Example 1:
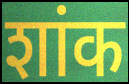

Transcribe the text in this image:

शांक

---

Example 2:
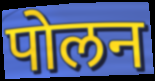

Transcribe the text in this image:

पोलन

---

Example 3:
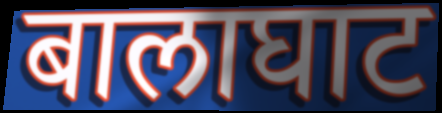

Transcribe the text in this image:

बालाघाट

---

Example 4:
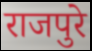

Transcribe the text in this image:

राजपुरे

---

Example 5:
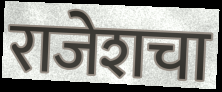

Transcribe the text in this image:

राजेशचा